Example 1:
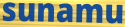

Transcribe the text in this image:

sunamu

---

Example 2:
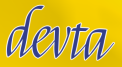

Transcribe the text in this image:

devta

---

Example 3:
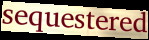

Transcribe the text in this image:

sequestered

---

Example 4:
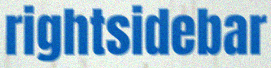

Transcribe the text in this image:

rightsidebar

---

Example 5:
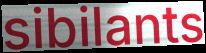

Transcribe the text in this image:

sibilants